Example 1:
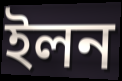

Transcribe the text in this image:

ইলন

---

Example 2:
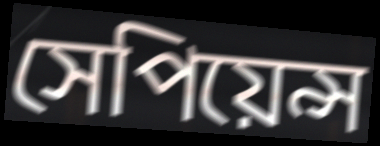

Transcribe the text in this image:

সেপিয়েন্স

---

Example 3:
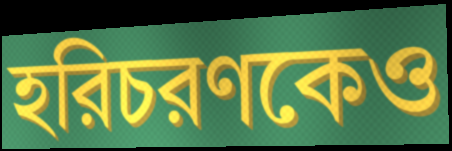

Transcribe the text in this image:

হরিচরণকেও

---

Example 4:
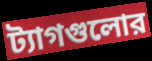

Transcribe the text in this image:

ট্যাগগুলোর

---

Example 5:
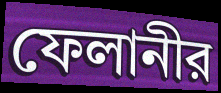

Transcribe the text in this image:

ফেলানীর